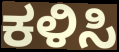
ಕಳಿಸಿ